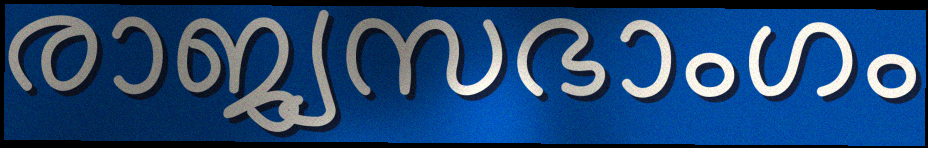
രാജ്യസഭാംഗം